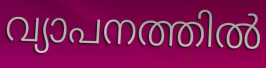
വ്യാപനത്തിൽ